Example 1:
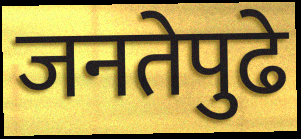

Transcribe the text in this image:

जनतेपुढे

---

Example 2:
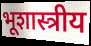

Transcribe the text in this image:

भूशास्त्रीय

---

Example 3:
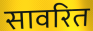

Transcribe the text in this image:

सावरित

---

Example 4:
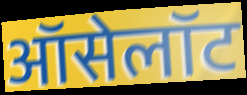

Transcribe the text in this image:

ऑसेलॉट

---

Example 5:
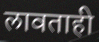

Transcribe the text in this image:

लावताही